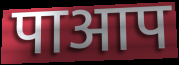
पाआप